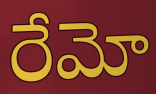
రేమో